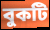
বুকটি